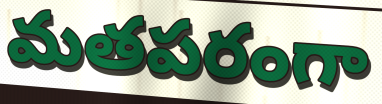
మతపరంగా